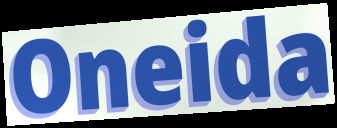
Oneida